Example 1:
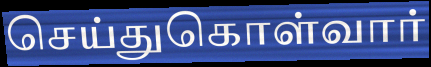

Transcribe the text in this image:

செய்துகொள்வார்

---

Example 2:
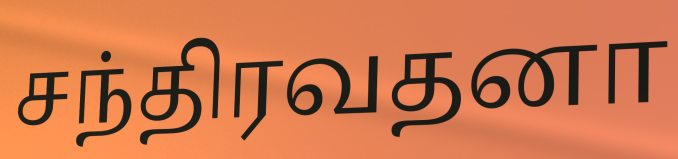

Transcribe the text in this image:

சந்திரவதனா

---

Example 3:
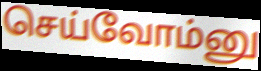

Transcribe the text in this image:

செய்வோம்னு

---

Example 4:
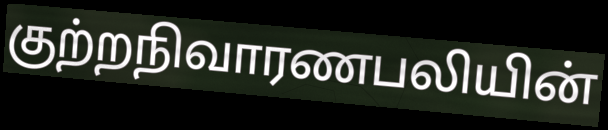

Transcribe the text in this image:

குற்றநிவாரணபலியின்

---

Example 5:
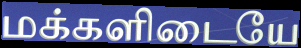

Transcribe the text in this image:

மக்களிடையே